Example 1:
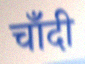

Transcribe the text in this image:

चाँदी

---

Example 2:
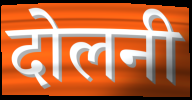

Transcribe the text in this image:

दोलनी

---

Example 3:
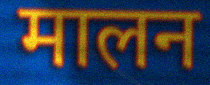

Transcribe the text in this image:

मालन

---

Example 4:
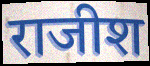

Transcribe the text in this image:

राजीश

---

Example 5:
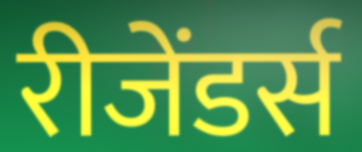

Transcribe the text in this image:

रीजेंडर्स